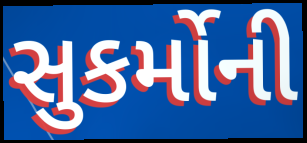
સુકર્મોની